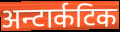
अन्टार्कटिक